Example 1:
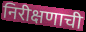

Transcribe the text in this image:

निरीक्षणाची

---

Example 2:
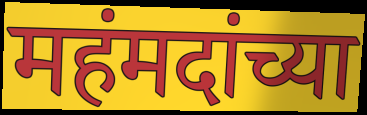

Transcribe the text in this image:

महंमदांच्या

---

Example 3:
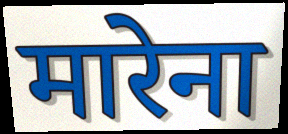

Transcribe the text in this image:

मारेना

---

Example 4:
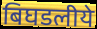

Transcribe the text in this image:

बिघडलीये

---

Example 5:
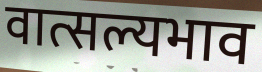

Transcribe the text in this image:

वात्सल्यभाव